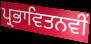
ਪ੍ਰਭਾਵਿਤਨਵੀਂ